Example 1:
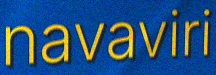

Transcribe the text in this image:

navaviri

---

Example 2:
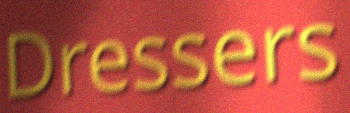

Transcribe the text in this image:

Dressers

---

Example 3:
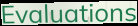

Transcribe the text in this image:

Evaluations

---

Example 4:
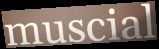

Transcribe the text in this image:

muscial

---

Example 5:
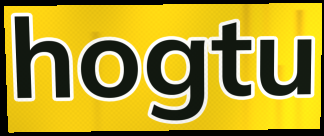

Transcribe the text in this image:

hogtu